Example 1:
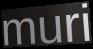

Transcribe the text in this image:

muri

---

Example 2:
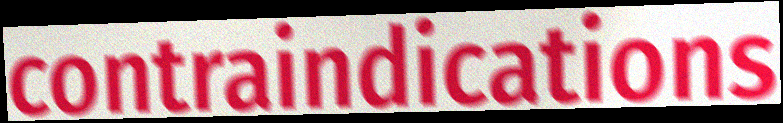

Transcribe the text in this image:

contraindications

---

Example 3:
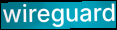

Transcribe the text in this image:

wireguard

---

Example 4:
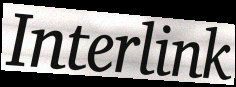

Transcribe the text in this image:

Interlink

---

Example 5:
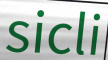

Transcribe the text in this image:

sicli